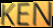
KEN